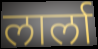
लार्ला